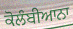
ਕੋਲੰਬੀਆਨਾ